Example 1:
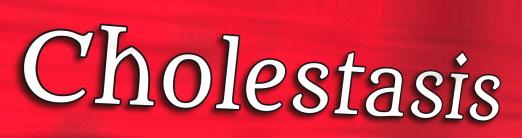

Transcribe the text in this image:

Cholestasis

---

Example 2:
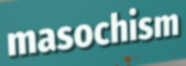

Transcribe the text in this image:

masochism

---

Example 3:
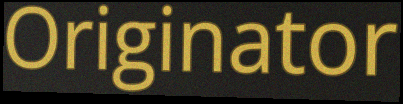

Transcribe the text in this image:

Originator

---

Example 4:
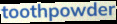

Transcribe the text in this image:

toothpowder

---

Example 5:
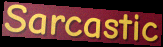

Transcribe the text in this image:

Sarcastic